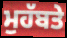
ਮੁਹੱਬਤੇ